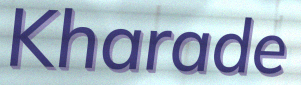
Kharade